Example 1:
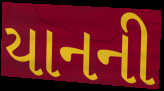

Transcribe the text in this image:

યાનની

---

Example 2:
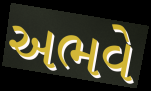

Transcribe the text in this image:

અભવે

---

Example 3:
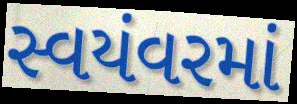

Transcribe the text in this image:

સ્વયંવરમાં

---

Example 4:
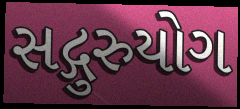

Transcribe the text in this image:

સદ્ગુરુયોગ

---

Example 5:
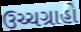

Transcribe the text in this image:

ઉચ્ચગ્રાહો